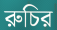
রুচির